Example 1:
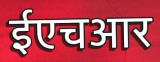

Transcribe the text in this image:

ईएचआर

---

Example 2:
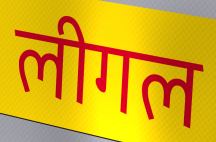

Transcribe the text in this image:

लीगल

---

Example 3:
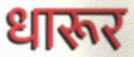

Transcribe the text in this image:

धारूर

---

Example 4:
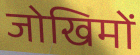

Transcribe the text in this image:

जोखिमों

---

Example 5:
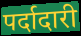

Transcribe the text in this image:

पर्दादारी